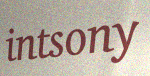
intsony